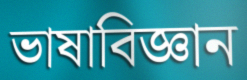
ভাষাবিজ্ঞান